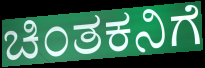
ಚಿಂತಕನಿಗೆ